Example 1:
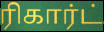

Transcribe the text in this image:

ரிகார்ட்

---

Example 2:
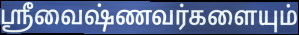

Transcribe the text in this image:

ஸ்ரீவைஷ்ணவர்களையும்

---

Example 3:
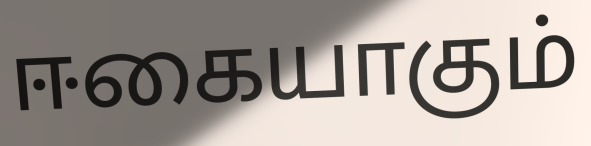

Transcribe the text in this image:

ஈகையாகும்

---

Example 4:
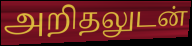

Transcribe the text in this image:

அறிதலுடன்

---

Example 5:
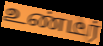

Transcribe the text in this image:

உண்டீர்